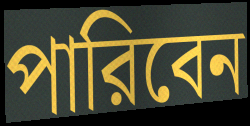
পারিবেন